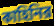
কাহিনির